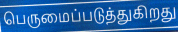
பெருமைப்படுத்துகிறது